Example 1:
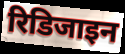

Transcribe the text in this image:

रिडिजाइन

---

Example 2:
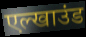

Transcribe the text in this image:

एल्खाउंड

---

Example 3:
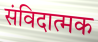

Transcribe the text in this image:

संविदात्मक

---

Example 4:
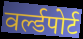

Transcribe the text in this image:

वर्ल्डपोर्ट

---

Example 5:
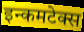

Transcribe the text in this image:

इन्कमटेक्स